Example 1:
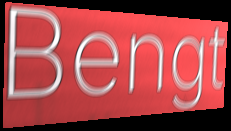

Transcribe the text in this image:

Bengt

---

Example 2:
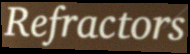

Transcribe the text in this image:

Refractors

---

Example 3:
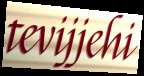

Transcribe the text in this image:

tevijjehi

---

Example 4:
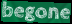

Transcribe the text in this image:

begone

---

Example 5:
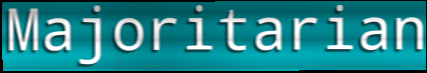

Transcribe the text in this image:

Majoritarian